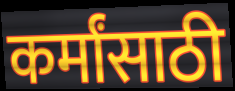
कर्मांसाठी